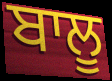
ਬਾਲੂ